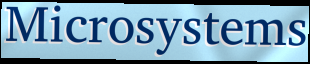
Microsystems